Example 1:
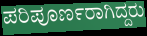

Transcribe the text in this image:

ಪರಿಪೂರ್ಣರಾಗಿದ್ದರು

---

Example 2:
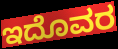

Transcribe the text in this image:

ಇದೊವರ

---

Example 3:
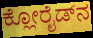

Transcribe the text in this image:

ಕ್ಲೋರೈಡ್‍ನ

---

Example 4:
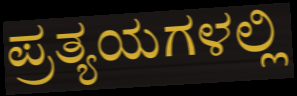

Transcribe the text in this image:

ಪ್ರತ್ಯಯಗಳಲ್ಲಿ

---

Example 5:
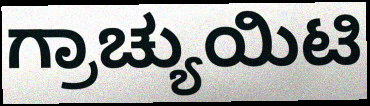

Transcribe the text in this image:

ಗ್ರಾಚ್ಯುಯಿಟಿ